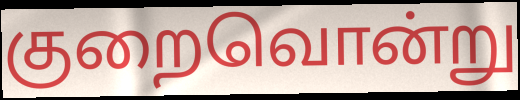
குறைவொன்று